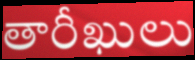
తారీఖులు